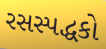
રસસ્પદ્ધકો